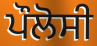
ਪੌਲੋਸੀ